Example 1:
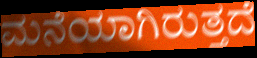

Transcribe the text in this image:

ಮನೆಯಾಗಿರುತ್ತದೆ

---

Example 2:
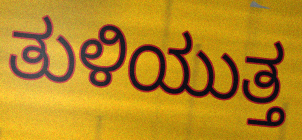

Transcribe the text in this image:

ತುಳಿಯುತ್ತ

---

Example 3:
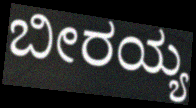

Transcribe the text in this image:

ಬೀರಯ್ಯ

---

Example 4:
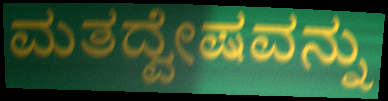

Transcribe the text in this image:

ಮತದ್ವೇಷವನ್ನು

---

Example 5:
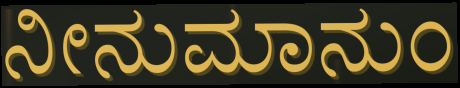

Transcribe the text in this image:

ನೀನುಮಾನುಂ